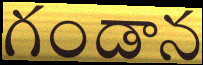
గండాన